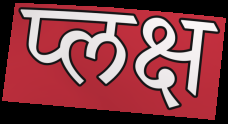
प्लक्ष